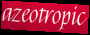
azeotropic